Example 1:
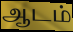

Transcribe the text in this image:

ஆடம்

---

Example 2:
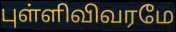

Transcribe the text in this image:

புள்ளிவிவரமே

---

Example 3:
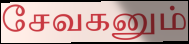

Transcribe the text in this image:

சேவகனும்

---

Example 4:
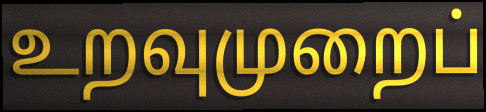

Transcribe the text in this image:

உறவுமுறைப்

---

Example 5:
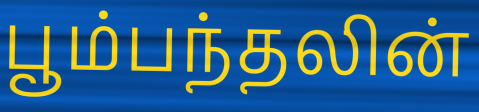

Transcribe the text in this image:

பூம்பந்தலின்